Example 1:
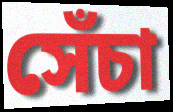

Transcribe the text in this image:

সেঁচা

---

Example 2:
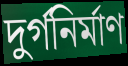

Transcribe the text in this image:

দুর্গনির্মাণ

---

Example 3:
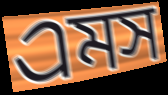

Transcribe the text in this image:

এমস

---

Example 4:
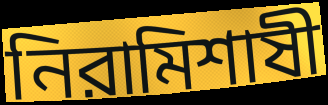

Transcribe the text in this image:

নিরামিশাষী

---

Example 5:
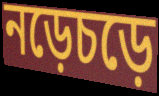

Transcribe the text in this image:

নড়েচড়ে